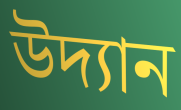
উদ্যান